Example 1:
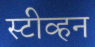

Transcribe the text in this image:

स्टीव्हन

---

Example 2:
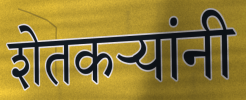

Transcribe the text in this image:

शेतकर्‍यांनी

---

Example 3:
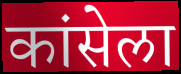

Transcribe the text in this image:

कांसेला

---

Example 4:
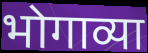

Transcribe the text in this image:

भोगाव्या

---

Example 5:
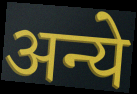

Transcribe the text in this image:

अन्ये